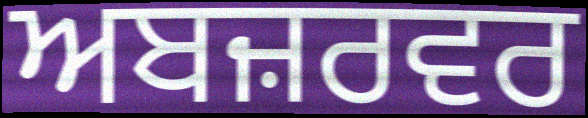
ਅਬਜ਼ਰਵਰ